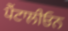
ਪੈਂਟਾਲੀਓਨ